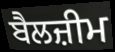
ਬੈਲਜ਼ੀਮ